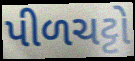
પીળચટ્ટો